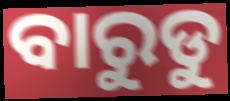
ବାରୁଡୁ